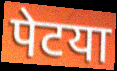
पेटया